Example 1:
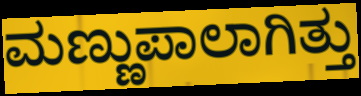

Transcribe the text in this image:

ಮಣ್ಣುಪಾಲಾಗಿತ್ತು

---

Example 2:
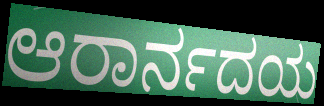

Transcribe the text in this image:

ಆರಾರ್ನದಯ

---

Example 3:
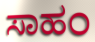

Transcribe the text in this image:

ಸಾಹಂ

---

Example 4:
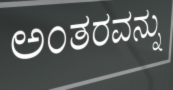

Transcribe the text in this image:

ಅಂತರವನ್ನು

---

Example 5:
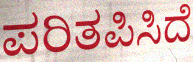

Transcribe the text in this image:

ಪರಿತಪಿಸಿದೆ